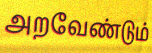
அறவேண்டும்